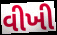
વીખી